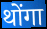
थोंगा